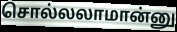
சொல்லலாமான்னு